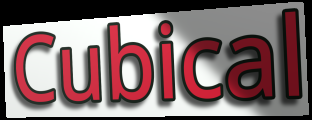
Cubical